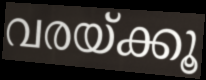
വരയ്ക്കൂ